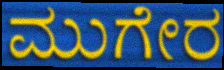
ಮುಗೇರ